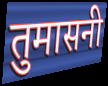
तुमासनी